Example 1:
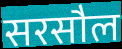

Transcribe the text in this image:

सरसौल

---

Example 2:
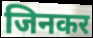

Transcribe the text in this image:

जिनकर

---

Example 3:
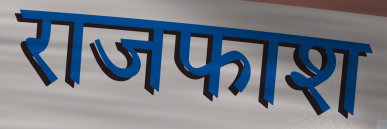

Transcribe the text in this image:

राजफाश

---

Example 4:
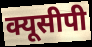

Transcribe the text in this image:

क्यूसीपी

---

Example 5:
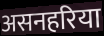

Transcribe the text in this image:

असनहरिया